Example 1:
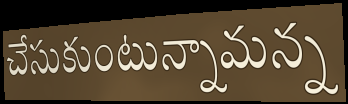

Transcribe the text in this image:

చేసుకుంటున్నామన్న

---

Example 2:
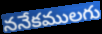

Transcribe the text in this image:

ననేకములగు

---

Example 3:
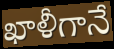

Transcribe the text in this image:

ఖాళీగానే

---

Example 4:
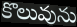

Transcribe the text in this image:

కొలువును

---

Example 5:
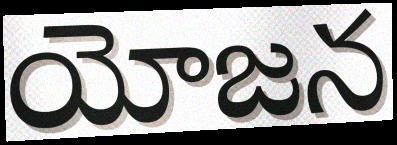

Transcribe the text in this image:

యోజన